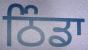
ਠਿੰਡਾ